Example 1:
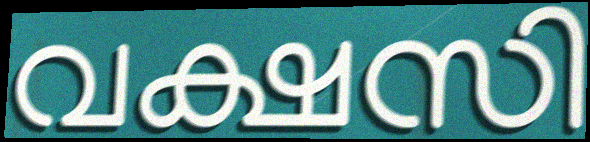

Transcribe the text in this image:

വക്ഷസി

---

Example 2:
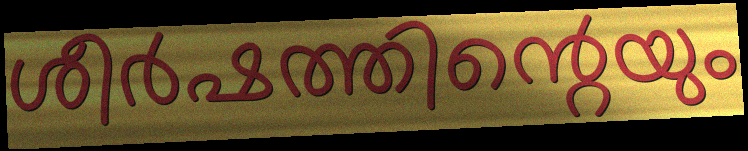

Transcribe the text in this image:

ശീർഷത്തിന്റെയും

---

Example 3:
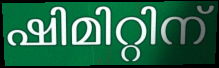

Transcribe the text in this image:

ഷിമിറ്റിന്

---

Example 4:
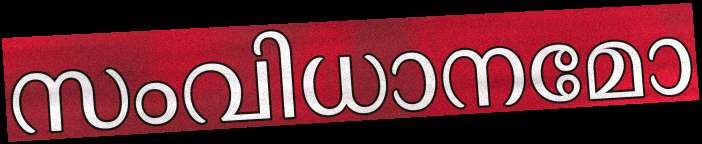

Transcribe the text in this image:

സംവിധാനമോ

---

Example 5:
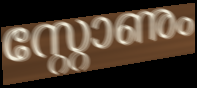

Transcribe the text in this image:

സ്റ്റോണും